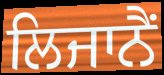
ਲਿਜਾਨੈਂ